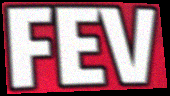
FEV